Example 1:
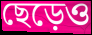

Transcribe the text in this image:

ছেড়েও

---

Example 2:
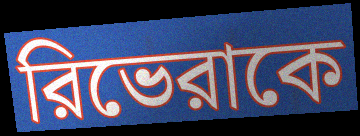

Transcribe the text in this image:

রিভেরাকে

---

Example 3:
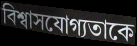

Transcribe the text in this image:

বিশ্বাসযোগ্যতাকে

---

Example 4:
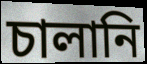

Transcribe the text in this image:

চালানি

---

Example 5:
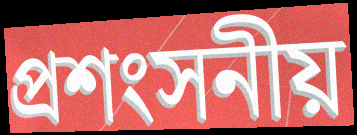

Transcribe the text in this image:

প্রশংসনীয়